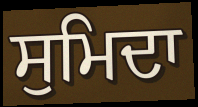
ਸੁਮਿਦਾ